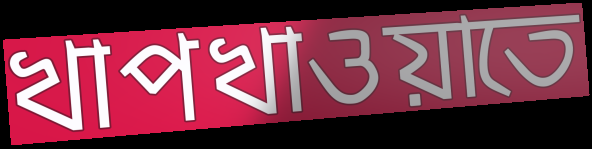
খাপখাওয়াতে